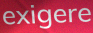
exigere